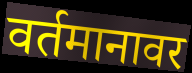
वर्तमानावर